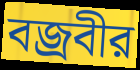
বজ্রবীর